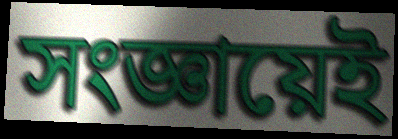
সংজ্ঞায়েই